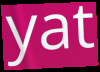
yat